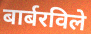
बार्बरविले